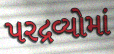
પરદ્રવ્યોમાં